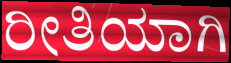
ರೀತಿಯಾಗಿ